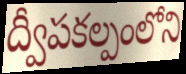
ద్వీపకల్పంలోని